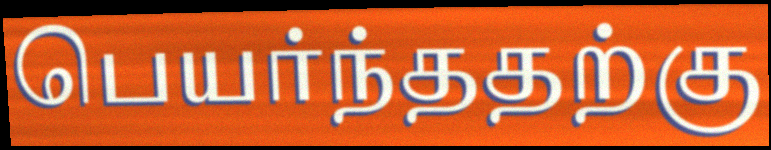
பெயர்ந்ததற்கு